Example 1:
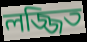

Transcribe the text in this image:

লজ্জিত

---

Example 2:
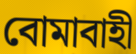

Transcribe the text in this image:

বোমাবাহী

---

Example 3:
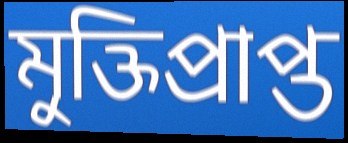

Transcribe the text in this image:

মুক্তিপ্রাপ্ত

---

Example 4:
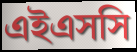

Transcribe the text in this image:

এইএসসি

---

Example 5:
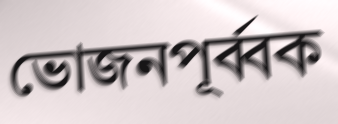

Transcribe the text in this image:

ভোজনপূর্ব্বক